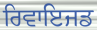
ਰਿਵਾਇਜਡ